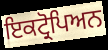
ਇਕਟ੍ਰੋਪਿਅਨ